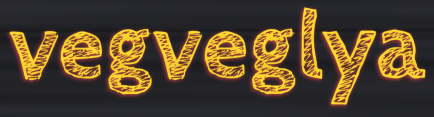
vegveglya